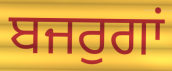
ਬਜਰੁਗਾਂ